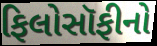
ફિલોસૉફીનો